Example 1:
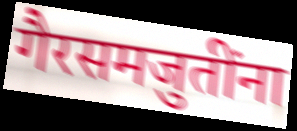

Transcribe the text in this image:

गैरसमजुतींना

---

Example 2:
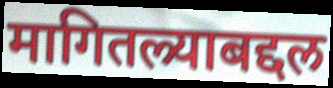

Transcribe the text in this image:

मागितल्याबद्दल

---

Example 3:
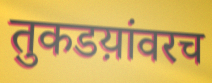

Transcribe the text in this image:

तुकडय़ांवरच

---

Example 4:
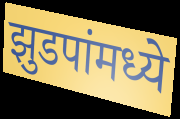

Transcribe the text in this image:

झुडपांमध्ये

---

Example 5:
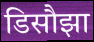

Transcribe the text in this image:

डिसौझा